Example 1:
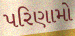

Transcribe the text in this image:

પરિણામો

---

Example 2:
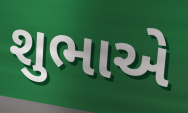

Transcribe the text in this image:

શુભાએ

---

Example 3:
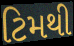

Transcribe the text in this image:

ટિમથી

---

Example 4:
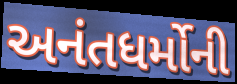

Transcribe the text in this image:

અનંતધર્મોની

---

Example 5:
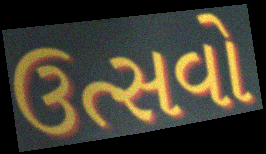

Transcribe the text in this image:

ઉત્સવો